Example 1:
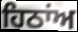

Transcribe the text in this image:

ਹਿਠਾਂਅ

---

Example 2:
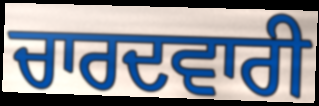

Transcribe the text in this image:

ਚਾਰਦਵਾਰੀ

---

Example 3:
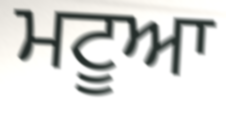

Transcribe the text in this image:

ਮਟੂਆ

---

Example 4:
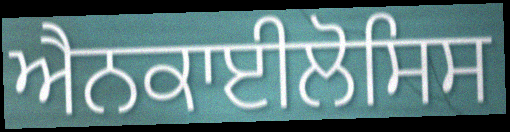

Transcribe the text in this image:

ਐਨਕਾਈਲੋਸਿਸ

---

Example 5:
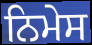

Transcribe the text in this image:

ਨਿਮੇਸ